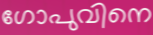
ഗോപുവിനെ